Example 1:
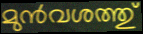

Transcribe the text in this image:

മുൻവശത്തു്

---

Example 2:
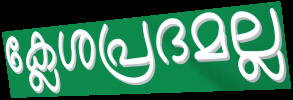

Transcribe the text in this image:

ക്ലേശപ്രദമല്ല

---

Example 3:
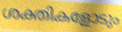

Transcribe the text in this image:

ശക്തികളോടും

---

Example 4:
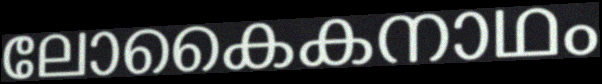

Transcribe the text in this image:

ലോകൈകനാഥം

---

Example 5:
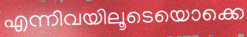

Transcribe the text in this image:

എന്നിവയിലൂടെയൊക്കെ